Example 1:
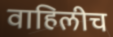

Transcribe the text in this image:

वाहिलीच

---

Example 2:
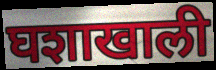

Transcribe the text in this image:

घशाखाली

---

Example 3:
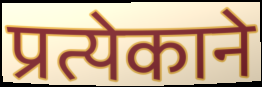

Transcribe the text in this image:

प्रत्येकाने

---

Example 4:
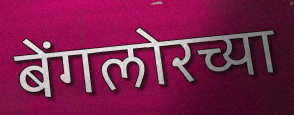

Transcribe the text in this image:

बेंगलोरच्या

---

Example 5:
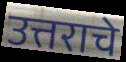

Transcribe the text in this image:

उत्तराचे